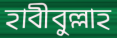
হাবীবুল্লাহ